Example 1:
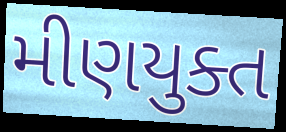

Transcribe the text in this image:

મીણયુક્ત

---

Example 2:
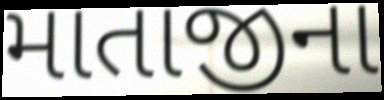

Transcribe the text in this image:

માતાજીના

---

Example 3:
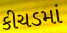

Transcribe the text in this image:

કીચડમાં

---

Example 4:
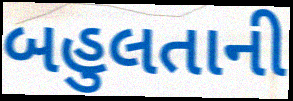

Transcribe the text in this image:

બહુલતાની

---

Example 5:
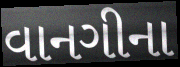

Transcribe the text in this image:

વાનગીના